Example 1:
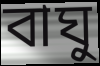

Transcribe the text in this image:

বাঘু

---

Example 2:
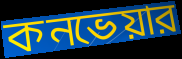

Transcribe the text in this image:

কনভেয়ার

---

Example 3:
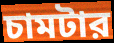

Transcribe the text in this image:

চামটার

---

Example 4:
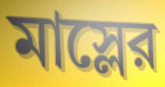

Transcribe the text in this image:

মাস্লের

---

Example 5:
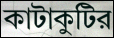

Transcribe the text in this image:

কাটাকুটির